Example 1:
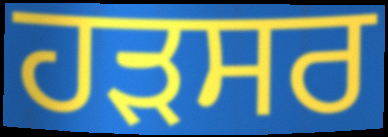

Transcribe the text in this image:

ਹੜਸਰ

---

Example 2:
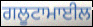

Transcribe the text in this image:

ਗਲੂਟਾਮਾਈਲ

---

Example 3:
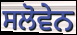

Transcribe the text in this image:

ਸਲੋਵੇਨ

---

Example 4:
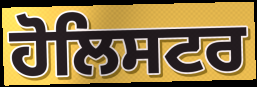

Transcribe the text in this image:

ਹੋਲਿਸਟਰ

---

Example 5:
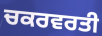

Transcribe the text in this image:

ਚਕਰਵਰਤੀ